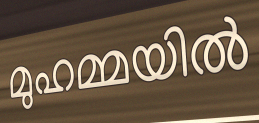
മുഹമ്മയിൽ